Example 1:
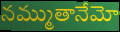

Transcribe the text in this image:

నమ్ముతానేమో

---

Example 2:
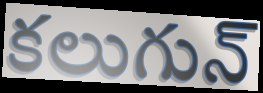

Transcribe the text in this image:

కలుగున్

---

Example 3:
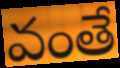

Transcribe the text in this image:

వంతే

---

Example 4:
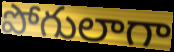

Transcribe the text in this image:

పోగులాగా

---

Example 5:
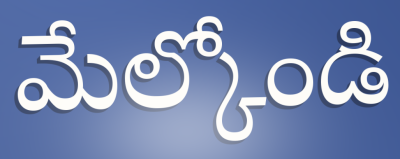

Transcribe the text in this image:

మేల్కోండి